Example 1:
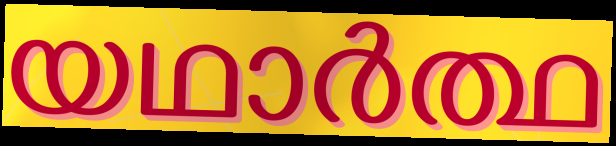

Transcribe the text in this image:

യഥാർത്ഥ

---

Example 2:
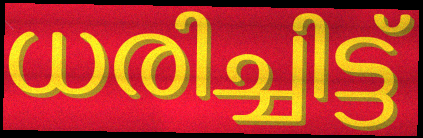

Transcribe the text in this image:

ധരിച്ചിട്ട്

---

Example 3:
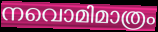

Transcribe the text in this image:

നവൊമിമാത്രം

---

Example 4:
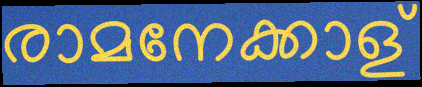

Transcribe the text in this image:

രാമനേക്കാള്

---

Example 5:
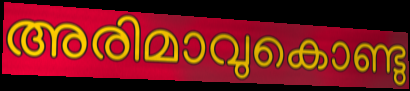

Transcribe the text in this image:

അരിമാവുകൊണ്ടു